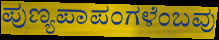
ಪುಣ್ಯಪಾಪಂಗಳೆಂಬವು